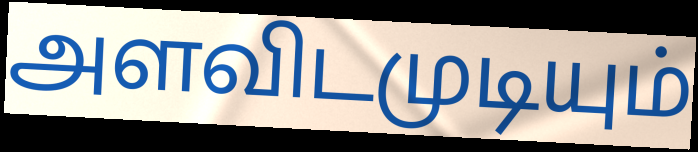
அளவிடமுடியும்